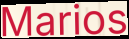
Marios